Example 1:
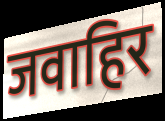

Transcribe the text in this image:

जवाहिर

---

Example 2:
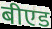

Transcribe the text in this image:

बीएड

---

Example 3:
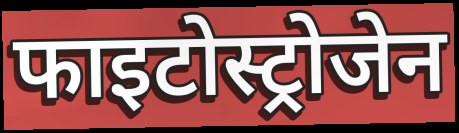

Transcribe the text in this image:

फाइटोस्ट्रोजेन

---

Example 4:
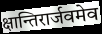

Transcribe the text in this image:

क्षान्तिरार्जवमेव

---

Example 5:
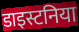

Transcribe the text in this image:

डाइस्टनिया